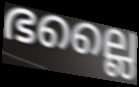
ഭല്ലൈ